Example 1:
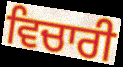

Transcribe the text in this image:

ਵਿਚਾਰੀ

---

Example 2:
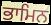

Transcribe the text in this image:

ਭਾਮਿਨ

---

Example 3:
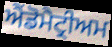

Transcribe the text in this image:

ਐਂਡੋਮੈਟ੍ਰੀਅਮ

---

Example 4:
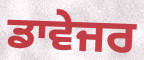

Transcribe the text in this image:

ਡਾਵੇਜਰ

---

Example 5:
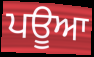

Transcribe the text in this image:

ਪਊਆ